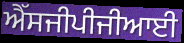
ਐੱਸਜੀਪੀਜੀਆਈ